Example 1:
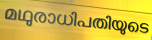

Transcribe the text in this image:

മഥുരാധിപതിയുടെ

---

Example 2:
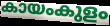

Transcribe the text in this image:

കായംകുളം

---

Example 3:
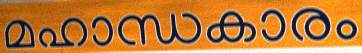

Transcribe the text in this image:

മഹാന്ധകാരം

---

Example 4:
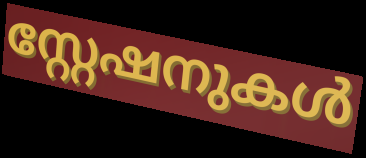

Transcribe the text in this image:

സ്റ്റേഷനുകൾ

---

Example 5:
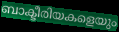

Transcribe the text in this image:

ബാക്ടീരിയകളെയും